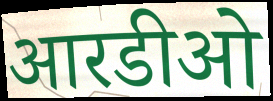
आरडीओ